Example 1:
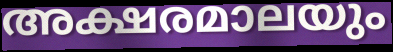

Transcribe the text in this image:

അക്ഷരമാലയും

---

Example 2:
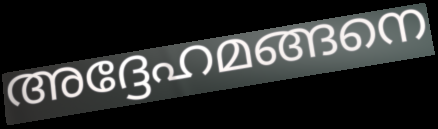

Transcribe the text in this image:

അദ്ദേഹമങ്ങനെ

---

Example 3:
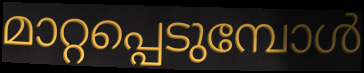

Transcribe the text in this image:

മാറ്റപ്പെടുമ്പോൾ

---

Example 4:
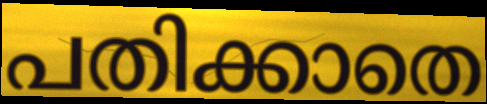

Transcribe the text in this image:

പതിക്കാതെ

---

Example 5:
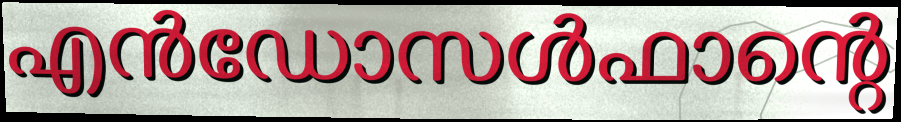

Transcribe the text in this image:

എൻഡോസൾഫാന്റെ